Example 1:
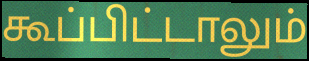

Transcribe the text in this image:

கூப்பிட்டாலும்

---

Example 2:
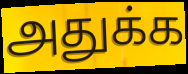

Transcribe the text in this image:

அதுக்க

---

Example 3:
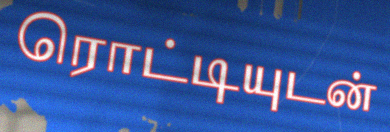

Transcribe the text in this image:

ரொட்டியுடன்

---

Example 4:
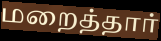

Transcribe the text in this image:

மறைத்தார்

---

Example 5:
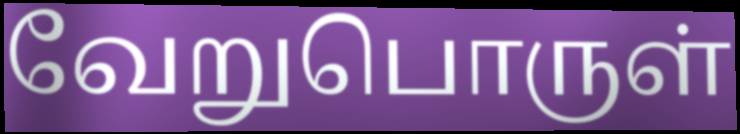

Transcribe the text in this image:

வேறுபொருள்